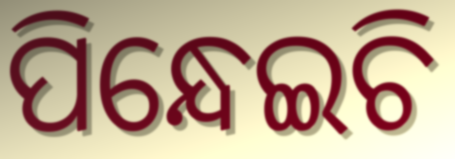
ପିନ୍ଧେଇଚି